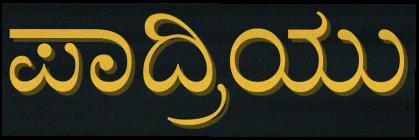
ಪಾದ್ರಿಯು